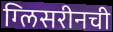
ग्लिसरीनची